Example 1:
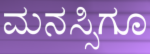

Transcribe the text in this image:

ಮನಸ್ಸಿಗೂ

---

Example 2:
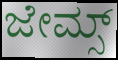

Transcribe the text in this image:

ಜೇಮ್ಸ್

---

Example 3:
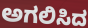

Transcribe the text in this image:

ಅಗಲಿಸಿದ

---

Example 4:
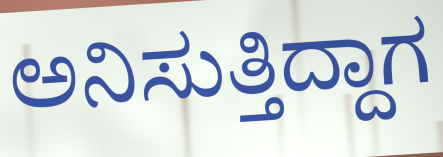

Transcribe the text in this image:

ಅನಿಸುತ್ತಿದ್ದಾಗ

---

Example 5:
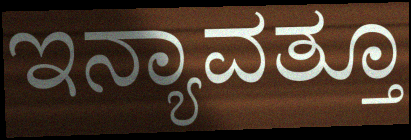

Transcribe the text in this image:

ಇನ್ಯಾವತ್ತೂ